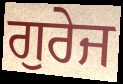
ਗੁਰੇਜ